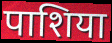
पाशिया